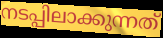
നടപ്പിലാക്കുന്നത്